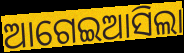
ଆଗେଇଆସିଲା